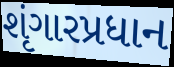
શૃંગારપ્રધાન